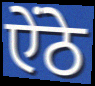
ऐंठे